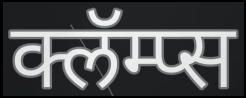
क्लॅम्प्स